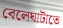
বেলেঘাটাতে